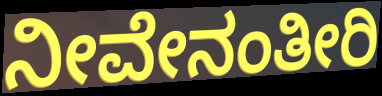
ನೀವೇನಂತೀರಿ